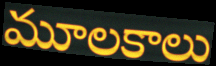
మూలకాలు